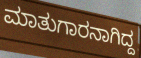
ಮಾತುಗಾರನಾಗಿದ್ದ